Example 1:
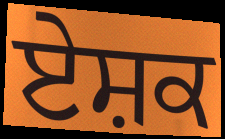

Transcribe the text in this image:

ਏਸ਼ਕ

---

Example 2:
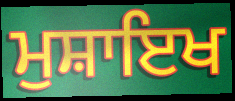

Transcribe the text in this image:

ਮੁਸ਼ਾਇਖ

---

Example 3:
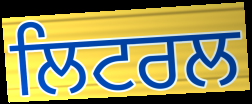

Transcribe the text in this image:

ਲਿਟਰਲ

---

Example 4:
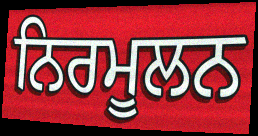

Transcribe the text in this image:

ਨਿਰਮੂਲਨ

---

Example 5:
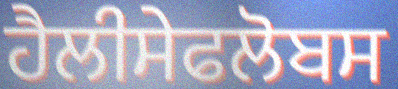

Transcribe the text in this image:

ਹੈਲੀਸੇਫਲੋਬਸ